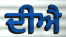
ਦੀਐ